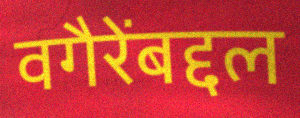
वगैरेंबद्दल